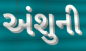
અંશુની